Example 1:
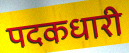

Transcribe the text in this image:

पदकधारी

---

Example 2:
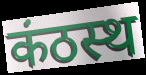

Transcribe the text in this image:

कंठस्थ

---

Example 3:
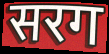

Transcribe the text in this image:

सरग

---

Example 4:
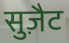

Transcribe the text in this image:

सुज़ैट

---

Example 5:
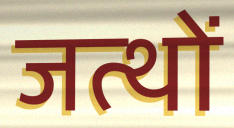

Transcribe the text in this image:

जत्थों